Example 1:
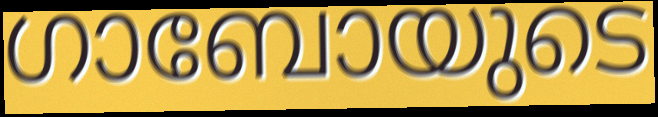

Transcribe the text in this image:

ഗാബോയുടെ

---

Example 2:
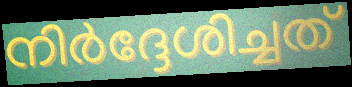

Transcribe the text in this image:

നിർദ്ദേശിച്ചത്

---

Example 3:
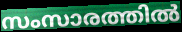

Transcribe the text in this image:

സംസാരത്തിൽ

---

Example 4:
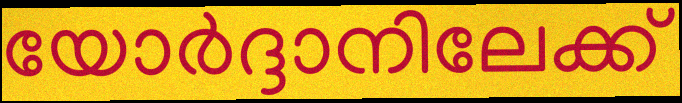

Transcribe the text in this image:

യോർദ്ദാനിലേക്ക്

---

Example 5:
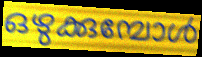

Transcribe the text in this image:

ഒഴുക്കുമ്പോൾ